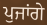
ਪੁਜਾਂਗੇ